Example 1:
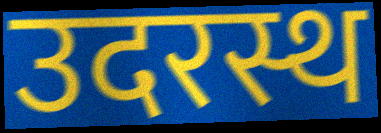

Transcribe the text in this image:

उदरस्थ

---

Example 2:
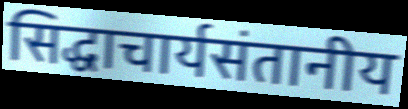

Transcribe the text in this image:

सिद्धाचार्यसंतानीय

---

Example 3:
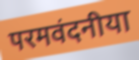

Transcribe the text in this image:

परमवंदनीया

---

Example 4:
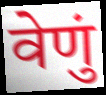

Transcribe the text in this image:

वेणुं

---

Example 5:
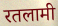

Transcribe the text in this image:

रतलामी